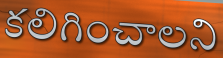
కలిగించాలని